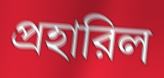
প্রহারিল